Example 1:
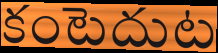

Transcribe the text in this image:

కంటెదుట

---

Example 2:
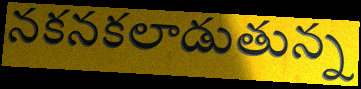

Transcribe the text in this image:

నకనకలాడుతున్న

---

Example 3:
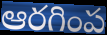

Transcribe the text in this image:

ఆరగింప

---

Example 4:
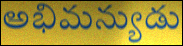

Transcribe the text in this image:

అభిమన్యుడు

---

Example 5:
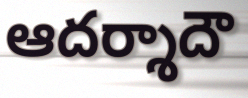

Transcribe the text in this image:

ఆదర్శాదౌ